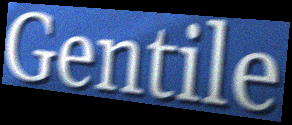
Gentile